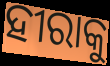
ହୀରାକୁ